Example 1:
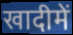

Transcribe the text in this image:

खादीमें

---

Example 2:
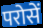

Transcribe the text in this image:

परोसें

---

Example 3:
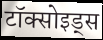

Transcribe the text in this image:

टॉक्सोइड्स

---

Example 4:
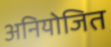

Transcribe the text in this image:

अनियोजित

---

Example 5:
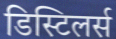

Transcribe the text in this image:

डिस्टिलर्स